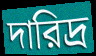
দারিদ্র